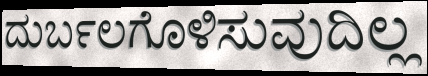
ದುರ್ಬಲಗೊಳಿಸುವುದಿಲ್ಲ